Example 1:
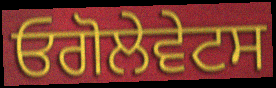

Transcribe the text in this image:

ਓਗੋਲੇਵੇਟਸ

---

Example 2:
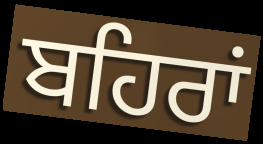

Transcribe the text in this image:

ਬਹਿਰਾਂ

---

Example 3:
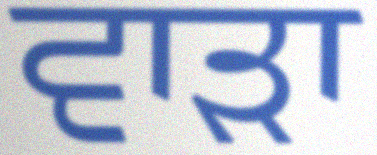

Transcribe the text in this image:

ਵਾੜਾ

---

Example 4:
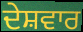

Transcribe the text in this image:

ਦੇਸ਼ਵਾਰ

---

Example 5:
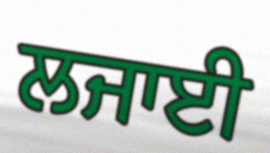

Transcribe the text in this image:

ਲਜਾਈ